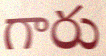
గారు